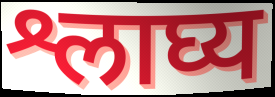
श्लाघ्य